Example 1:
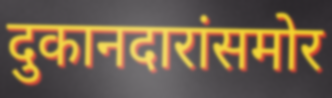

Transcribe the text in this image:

दुकानदारांसमोर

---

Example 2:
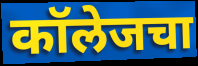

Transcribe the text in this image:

कॉलेजचा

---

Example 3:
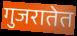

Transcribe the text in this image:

गुजरातेत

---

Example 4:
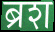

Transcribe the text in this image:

ब्रश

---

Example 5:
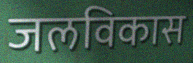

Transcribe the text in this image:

जलविकास